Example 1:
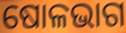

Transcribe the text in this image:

ଷୋଳଭାଗ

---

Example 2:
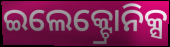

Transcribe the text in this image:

ଇଲେକ୍ଟ୍ରୋନିକ୍ସ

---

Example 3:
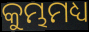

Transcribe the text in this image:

କୁମ୍ଭମଧ୍ୟ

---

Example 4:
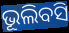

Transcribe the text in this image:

ଭୂଲିବସି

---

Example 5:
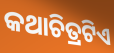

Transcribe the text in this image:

କଥାଚିତ୍ରଟିଏ